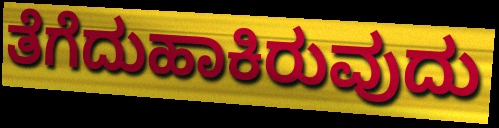
ತೆಗೆದುಹಾಕಿರುವುದು